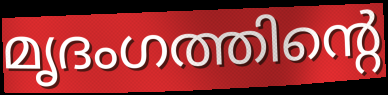
മൃദംഗത്തിന്റെ